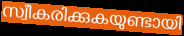
സ്വീകരിക്കുകയുണ്ടായി